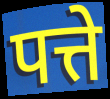
पत्ते